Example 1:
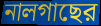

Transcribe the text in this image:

নালগাছের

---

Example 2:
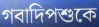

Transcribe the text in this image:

গবাদিপশুকে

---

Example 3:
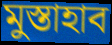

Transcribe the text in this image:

মুস্তাহাব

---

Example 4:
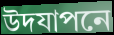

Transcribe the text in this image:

উদযাপনে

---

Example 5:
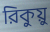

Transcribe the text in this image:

রিকুয়ু